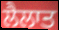
ਲੈਲਾਤ